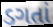
ડગતાં